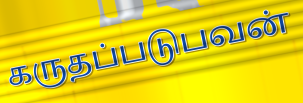
கருதப்படுபவன்